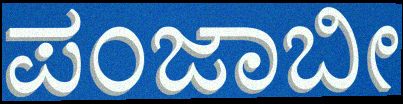
ಪಂಜಾಬೀ